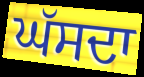
ਘੱਸਦਾ